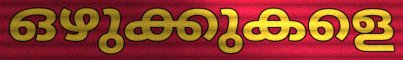
ഒഴുക്കുകളെ